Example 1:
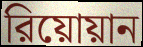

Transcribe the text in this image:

রিয়োয়ান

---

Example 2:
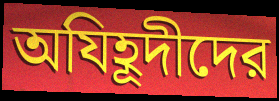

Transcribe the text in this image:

অযিহূদীদের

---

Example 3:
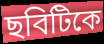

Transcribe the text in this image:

ছবিটিকে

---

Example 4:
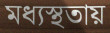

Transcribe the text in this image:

মধ্যস্থতায়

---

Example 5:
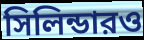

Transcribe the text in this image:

সিলিন্ডারও